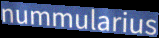
nummularius